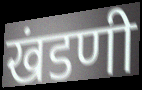
खंडणी